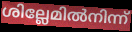
ശില്ലേമിൽനിന്ന്